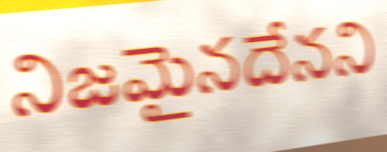
నిజమైనదేనని